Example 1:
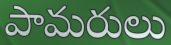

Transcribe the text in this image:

పామరులు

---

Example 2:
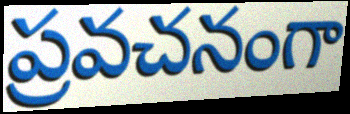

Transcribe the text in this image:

ప్రవచనంగా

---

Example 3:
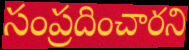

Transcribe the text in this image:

సంప్రదించారని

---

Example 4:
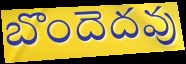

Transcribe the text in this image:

బొందెదవు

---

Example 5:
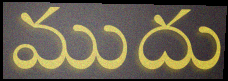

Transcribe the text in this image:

ముదు